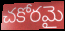
చకోరమై